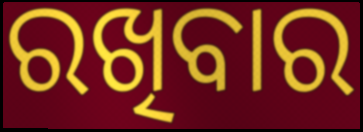
ରଖିବାର